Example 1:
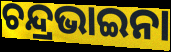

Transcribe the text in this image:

ଚନ୍ଦ୍ରଭାଇନା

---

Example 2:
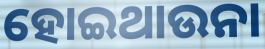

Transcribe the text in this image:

ହୋଇଥାଉନା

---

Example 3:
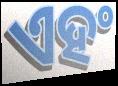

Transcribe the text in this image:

ଏହଂ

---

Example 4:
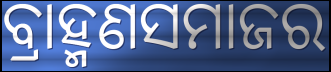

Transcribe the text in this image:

ବ୍ରାହ୍ମଣସମାଜର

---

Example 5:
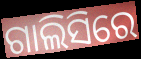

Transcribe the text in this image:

ଗାଲିସିରେ